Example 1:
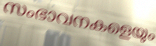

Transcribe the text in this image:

സംഭാവനകളെയും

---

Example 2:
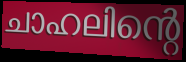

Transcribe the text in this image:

ചാഹലിന്റെ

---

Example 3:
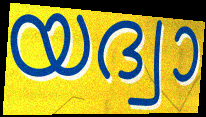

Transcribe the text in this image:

യദ്വാ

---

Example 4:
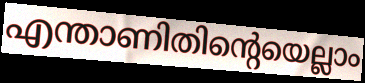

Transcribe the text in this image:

എന്താണിതിന്റെയെല്ലാം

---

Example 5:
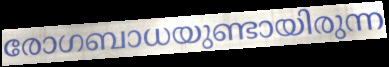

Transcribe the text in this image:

രോഗബാധയുണ്ടായിരുന്ന